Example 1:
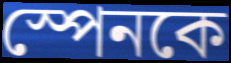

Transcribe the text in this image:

স্পেনকে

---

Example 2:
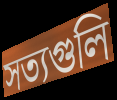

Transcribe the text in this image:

সত্যগুলি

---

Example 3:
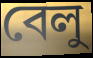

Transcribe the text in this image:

বেলু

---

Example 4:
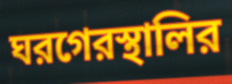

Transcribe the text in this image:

ঘরগেরস্থালির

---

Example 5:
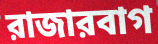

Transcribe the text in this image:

রাজারবাগ